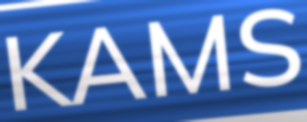
KAMS